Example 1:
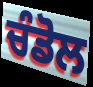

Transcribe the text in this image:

ਚੰਡੋਲ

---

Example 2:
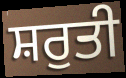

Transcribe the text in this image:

ਸ਼ਰੁਤੀ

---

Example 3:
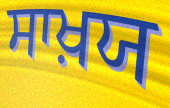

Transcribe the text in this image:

ਸਾਖ਼ਯ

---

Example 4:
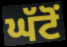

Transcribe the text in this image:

ਘੱਟੋਂ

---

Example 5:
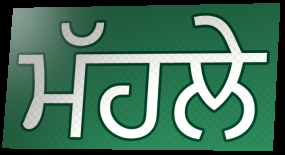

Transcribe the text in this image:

ਮੱਹਲੇ